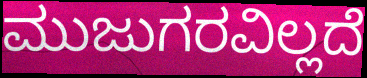
ಮುಜುಗರವಿಲ್ಲದೆ